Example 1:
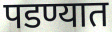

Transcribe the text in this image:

पडण्यात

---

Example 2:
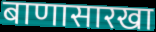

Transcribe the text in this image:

बाणासारखा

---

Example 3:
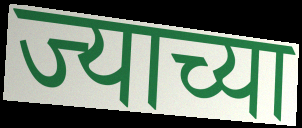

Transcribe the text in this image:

ज्याच्या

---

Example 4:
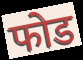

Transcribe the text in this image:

फोड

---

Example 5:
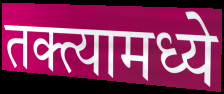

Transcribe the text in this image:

तक्‍त्यामध्ये